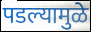
पडल्यामुळे